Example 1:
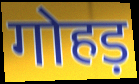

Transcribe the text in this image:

गोहड़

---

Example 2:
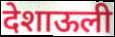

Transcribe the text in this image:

देशाऊली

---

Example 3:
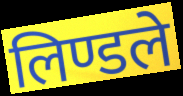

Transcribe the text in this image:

लिण्डले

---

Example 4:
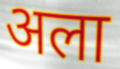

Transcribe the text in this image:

अला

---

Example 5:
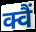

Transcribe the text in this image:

क्वैं